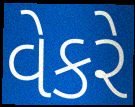
વેકરે